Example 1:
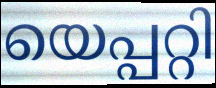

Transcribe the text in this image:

യെപ്പറ്റി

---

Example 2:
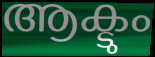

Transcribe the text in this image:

ആക്ടും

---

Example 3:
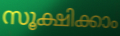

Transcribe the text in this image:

സൂക്ഷിക്കാം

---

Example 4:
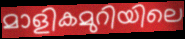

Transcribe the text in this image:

മാളികമുറിയിലെ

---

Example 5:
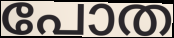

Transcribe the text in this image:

പോത